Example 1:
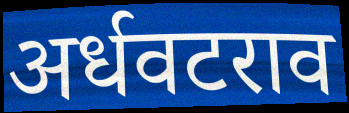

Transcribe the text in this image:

अर्धवटराव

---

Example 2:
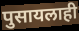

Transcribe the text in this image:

पुसायलाही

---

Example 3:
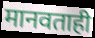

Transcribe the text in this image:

मानवताही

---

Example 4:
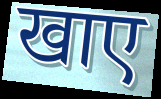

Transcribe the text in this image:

खाए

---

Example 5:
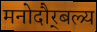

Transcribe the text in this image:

मनोदौर्बल्य